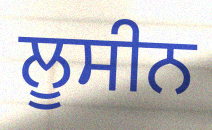
ਲੂਸੀਨ